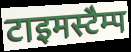
टाइमस्टैम्प